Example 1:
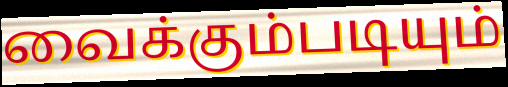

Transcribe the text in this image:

வைக்கும்படியும்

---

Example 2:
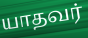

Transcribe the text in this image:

யாதவர்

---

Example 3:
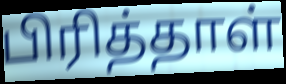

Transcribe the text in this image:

பிரித்தாள்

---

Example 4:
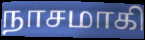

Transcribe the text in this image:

நாசமாகி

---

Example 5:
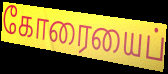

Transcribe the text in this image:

கோரையைப்